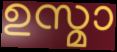
ഉസ്മാ